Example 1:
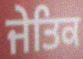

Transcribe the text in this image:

ਜੇਤਿਕ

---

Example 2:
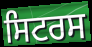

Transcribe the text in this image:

ਸਿਟਰਸ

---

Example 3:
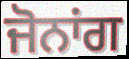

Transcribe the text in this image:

ਜੋਨਾਂਗ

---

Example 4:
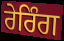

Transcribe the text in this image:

ਰੇਰਿੰਗ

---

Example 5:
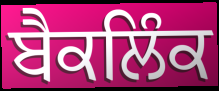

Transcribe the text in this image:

ਬੈਕਲਿੰਕ